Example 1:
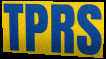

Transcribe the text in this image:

TPRS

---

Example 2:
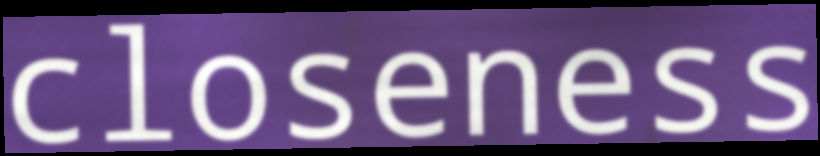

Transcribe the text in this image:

closeness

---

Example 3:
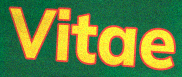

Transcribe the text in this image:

Vitae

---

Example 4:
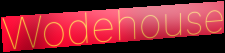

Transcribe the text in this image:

Wodehouse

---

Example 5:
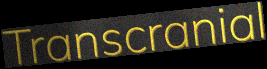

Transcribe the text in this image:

Transcranial